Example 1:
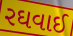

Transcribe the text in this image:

રઘવાઈ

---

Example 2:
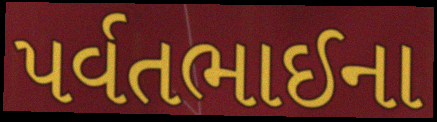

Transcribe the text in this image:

પર્વતભાઈના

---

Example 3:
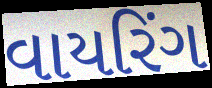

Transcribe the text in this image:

વાયરિંગ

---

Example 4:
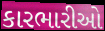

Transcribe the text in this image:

કારભારીઓ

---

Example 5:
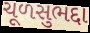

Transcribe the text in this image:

ચૂળસુભદ્દા